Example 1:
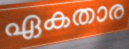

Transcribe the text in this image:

ഏകതാര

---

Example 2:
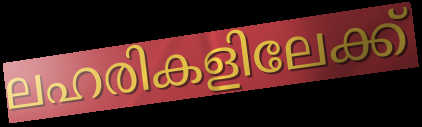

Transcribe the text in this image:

ലഹരികളിലേക്ക്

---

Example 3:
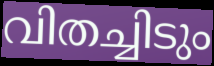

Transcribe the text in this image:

വിതച്ചിടും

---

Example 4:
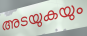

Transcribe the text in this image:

അടയുകയും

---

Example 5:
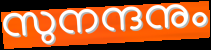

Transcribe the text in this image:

സുനന്ദനും